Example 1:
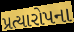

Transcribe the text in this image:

પ્રત્યારોપના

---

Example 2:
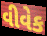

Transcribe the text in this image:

વીવેક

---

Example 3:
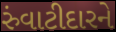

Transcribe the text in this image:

રુંવાટીદારને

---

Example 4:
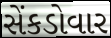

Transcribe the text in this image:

સેંકડોવાર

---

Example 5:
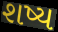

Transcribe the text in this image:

શષ્ય